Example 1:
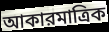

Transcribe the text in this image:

আকারমাত্রিক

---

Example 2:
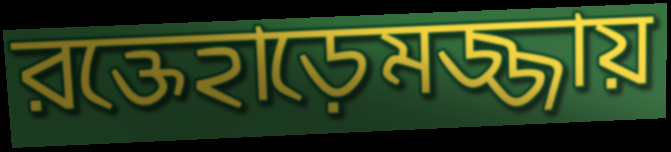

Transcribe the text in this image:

রক্তেহাড়েমজ্জায়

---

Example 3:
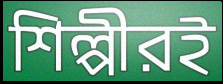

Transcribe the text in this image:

শিল্পীরই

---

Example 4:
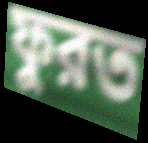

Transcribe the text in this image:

ফুরত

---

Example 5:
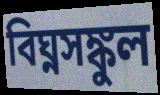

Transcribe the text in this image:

বিঘ্নসঙ্কুল